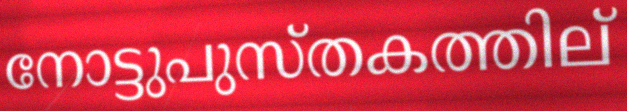
നോട്ടുപുസ്തകത്തില്